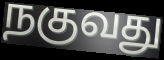
நகுவது